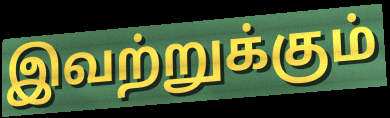
இவற்றுக்கும்